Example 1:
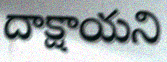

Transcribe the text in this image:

దాక్షాయని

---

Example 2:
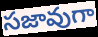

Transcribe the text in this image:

సజావుగా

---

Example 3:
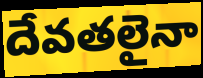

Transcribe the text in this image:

దేవతలైనా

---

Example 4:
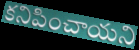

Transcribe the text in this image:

కనిపించాయని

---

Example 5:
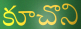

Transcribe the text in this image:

కూచొని